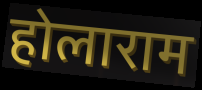
होलाराम